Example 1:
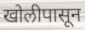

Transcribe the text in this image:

खोलीपासून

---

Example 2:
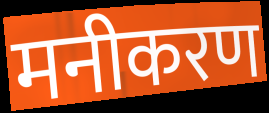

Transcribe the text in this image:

मनीकरण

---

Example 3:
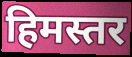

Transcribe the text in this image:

हिमस्तर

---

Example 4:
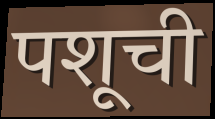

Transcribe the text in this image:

पशूची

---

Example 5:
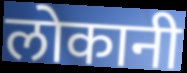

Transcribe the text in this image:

लोकानी